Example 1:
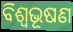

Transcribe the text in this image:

ବିଶ୍ୱଭୂଷଣ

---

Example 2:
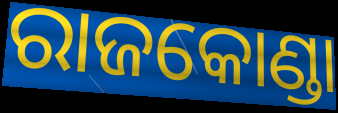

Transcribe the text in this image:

ରାଜକୋଣ୍ଡା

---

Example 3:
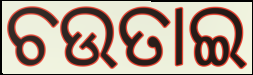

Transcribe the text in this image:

ଚଉତାଇ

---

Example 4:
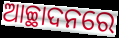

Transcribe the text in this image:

ଆଚ୍ଛାଦନରେ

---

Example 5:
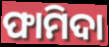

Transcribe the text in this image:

ଫାମିଦା